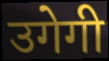
उगेगी